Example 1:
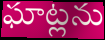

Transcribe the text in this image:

ఘాట్లను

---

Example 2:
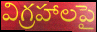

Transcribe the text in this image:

విగ్రహాలపై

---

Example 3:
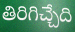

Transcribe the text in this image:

తిరిగిచ్చేది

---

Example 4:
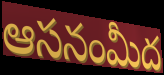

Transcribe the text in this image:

ఆసనంమీద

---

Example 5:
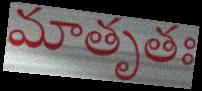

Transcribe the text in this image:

మాతృతః